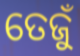
ତେଜୁଁ